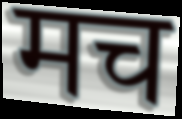
मच